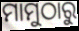
ମାମୁଠାରୁ